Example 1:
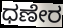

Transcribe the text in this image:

ಧಣೇರ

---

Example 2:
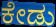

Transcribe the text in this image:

ಕೇಡು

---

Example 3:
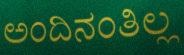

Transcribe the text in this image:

ಅಂದಿನಂತಿಲ್ಲ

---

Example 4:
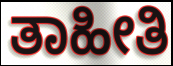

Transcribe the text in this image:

ತಾಹೀತಿ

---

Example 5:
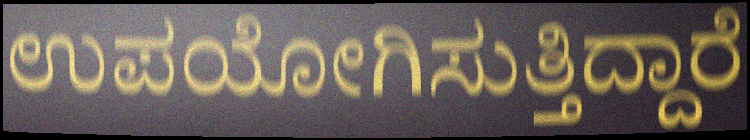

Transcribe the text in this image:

ಉಪಯೋಗಿಸುತ್ತಿದ್ದಾರೆ